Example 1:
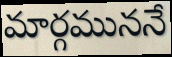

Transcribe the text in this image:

మార్గముననే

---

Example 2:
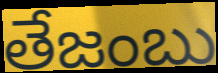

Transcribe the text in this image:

తేజంబు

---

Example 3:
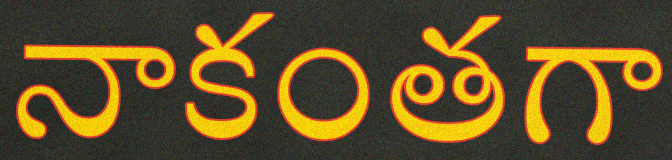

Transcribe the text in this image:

నాకంతగా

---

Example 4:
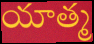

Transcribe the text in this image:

యాత్మ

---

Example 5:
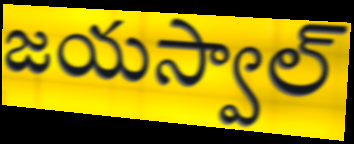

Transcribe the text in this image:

జయస్వాల్